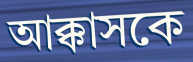
আক্কাসকে